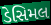
ડેસિમલ